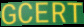
GCERT